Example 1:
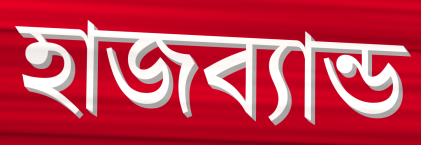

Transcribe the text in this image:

হাজব্যান্ড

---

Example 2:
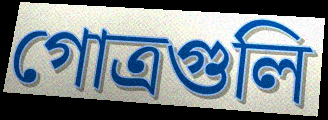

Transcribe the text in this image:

গোত্রগুলি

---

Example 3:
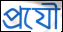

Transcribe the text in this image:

প্রযৌ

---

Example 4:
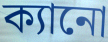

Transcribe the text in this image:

ক্যানো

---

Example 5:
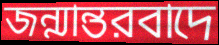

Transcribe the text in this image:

জন্মান্তরবাদে